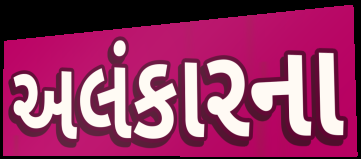
અલંકારના